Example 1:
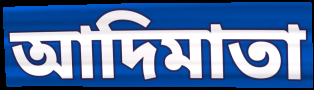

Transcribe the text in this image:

আদিমাতা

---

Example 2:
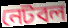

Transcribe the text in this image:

নেটবল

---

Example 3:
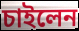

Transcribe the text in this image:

চাইলেন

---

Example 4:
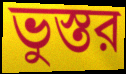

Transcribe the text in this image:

ভুস্তর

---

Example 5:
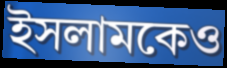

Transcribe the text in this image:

ইসলামকেও